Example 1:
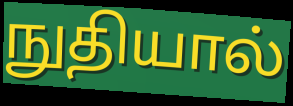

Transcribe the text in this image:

நுதியால்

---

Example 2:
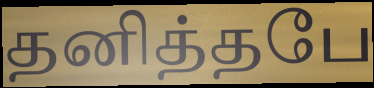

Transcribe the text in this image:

தனித்தபே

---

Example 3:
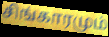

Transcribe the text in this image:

சிங்காரமும்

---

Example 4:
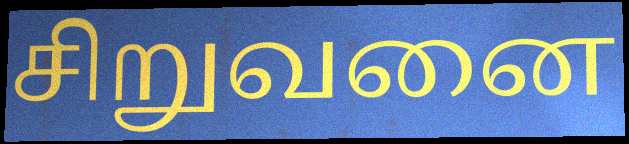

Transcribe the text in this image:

சிறுவனை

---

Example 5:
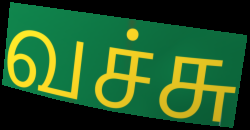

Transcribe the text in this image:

வச்சு